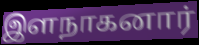
இளநாகனார்